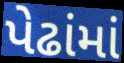
પેઢાંમાં